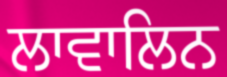
ਲਾਵਾਲਿਨ